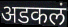
अडकलं